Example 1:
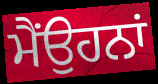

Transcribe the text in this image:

ਮੈਂਉਹਨਾਂ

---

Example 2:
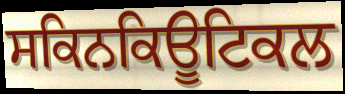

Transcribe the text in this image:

ਸਕਿਨਕਿਊਟਿਕਲ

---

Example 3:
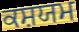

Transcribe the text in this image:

ਕਸ਼ਯਮ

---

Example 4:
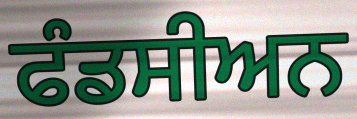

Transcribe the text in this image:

ਫੰਡਸੀਅਨ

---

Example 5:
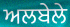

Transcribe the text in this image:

ਅਲਬੇਲੇ